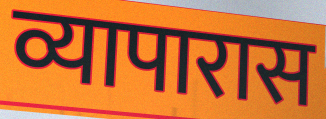
व्यापारास